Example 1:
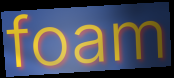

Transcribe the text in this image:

foam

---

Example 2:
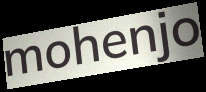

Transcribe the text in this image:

mohenjo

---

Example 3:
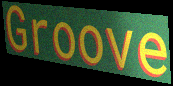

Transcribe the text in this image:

Groove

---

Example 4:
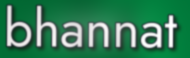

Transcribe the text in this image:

bhannat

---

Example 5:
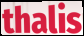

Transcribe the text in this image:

thalis